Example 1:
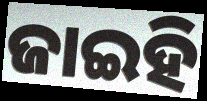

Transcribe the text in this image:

ଜାଇହି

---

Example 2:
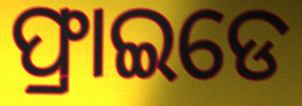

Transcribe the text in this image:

ଫ୍ରାଇଡେ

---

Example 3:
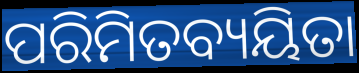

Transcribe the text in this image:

ପରିମିତବ୍ୟୟିତା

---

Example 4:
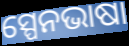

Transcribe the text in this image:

ସ୍ପେନଭାଷା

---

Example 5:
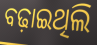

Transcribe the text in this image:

ବଢ଼ାଇଥିଲି